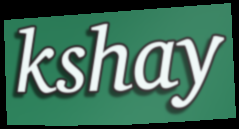
kshay